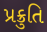
પ્રક્રુતિ